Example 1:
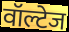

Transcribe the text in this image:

वॉल्टेज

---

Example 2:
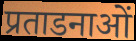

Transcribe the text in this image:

प्रताडनाओं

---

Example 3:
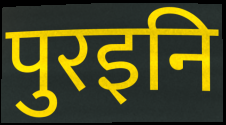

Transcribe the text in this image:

पुरइनि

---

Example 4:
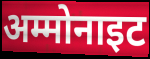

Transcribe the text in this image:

अम्मोनाइट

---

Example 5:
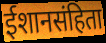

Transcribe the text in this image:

ईशानसंहिता